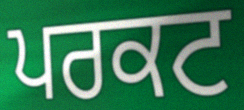
ਪਰਕਟ